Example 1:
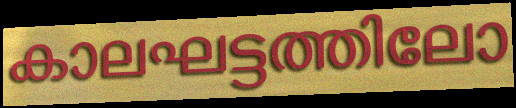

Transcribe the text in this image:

കാലഘട്ടത്തിലോ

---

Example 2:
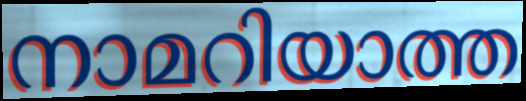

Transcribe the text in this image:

നാമറിയാത്ത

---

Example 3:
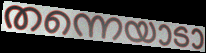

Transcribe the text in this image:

തന്നെയാടാ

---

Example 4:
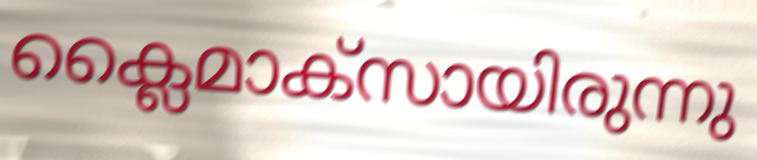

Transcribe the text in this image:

ക്ലൈമാക്സായിരുന്നു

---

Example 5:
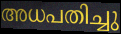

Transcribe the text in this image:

അധപതിച്ചു